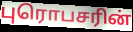
புரொபசரின்